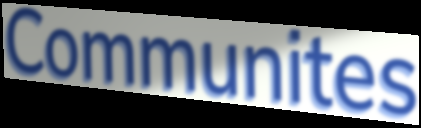
Communites